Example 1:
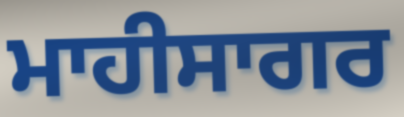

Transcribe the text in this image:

ਮਾਹੀਸਾਗਰ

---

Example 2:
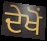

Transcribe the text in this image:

ਦੇਖੋਂ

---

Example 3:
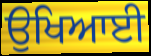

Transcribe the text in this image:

ਉਖਿਆਈ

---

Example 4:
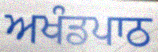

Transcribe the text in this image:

ਅਖੰਡਪਾਠ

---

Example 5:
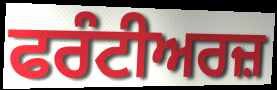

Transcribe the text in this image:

ਫਰੰਟੀਅਰਜ਼